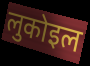
लुकोइल